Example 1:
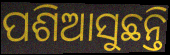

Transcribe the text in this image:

ପଶିଆସୁଛନ୍ତି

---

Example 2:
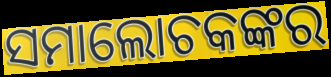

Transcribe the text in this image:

ସମାଲୋଚକଙ୍କର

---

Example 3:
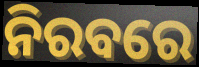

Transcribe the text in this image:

ନିରବରେ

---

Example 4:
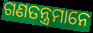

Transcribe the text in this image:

ଗଣତନ୍ତ୍ରମାନେ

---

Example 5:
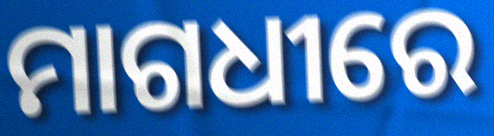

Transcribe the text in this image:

ମାଗଧୀରେ